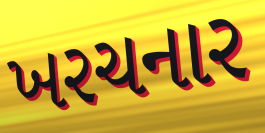
ખરચનાર